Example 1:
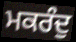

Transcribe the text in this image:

ਮਕਰੰਦੁ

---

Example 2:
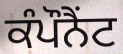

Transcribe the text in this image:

ਕੰਪੌਨੈਂਟ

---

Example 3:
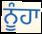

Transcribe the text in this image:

ਨੂੰਹਾ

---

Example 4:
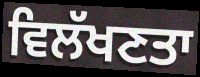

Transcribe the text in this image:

ਵਿਲੱਖਣਤਾ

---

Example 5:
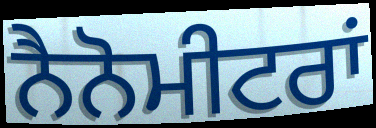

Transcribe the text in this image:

ਨੈਨੋਮੀਟਰਾਂ